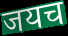
जयच